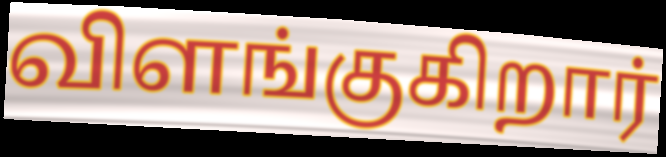
விளங்குகிறார்